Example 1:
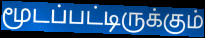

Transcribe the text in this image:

மூடப்பட்டிருக்கும்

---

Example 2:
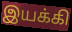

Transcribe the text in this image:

இயக்கி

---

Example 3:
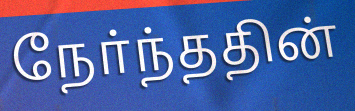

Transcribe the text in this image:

நேர்ந்ததின்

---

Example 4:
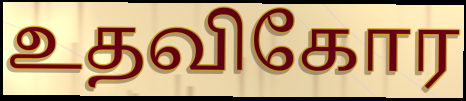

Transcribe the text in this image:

உதவிகோர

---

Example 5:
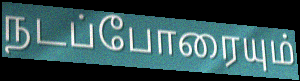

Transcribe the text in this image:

நடப்போரையும்